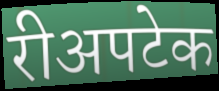
रीअपटेक